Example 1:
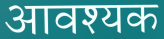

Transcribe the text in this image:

आवश्यक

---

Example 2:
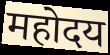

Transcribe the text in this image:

महोदय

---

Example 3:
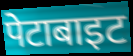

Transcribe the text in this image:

पेटाबाइट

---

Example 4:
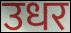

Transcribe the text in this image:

उधर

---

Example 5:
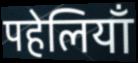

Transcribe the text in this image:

पहेलियाँ